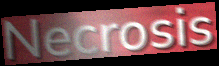
Necrosis